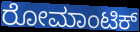
ರೋಮಾಂಟಿಕ್